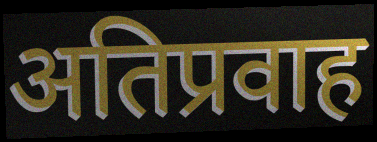
अतिप्रवाह